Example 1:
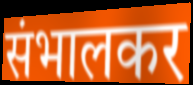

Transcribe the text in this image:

संभालकर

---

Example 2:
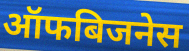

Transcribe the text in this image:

ऑफबिजनेस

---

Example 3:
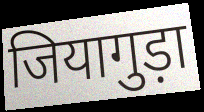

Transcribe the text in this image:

जियागुड़ा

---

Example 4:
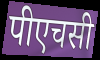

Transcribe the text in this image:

पीएचसी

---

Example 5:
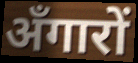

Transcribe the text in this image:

अँगारों